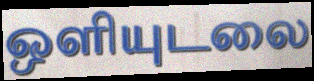
ஒளியுடலை